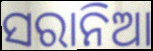
ସରାନିଆ